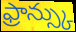
ఫ్రాన్స్కు